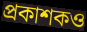
প্রকাশকও